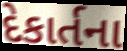
દેકાર્તના